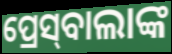
ପ୍ରେସ୍‌ବାଲାଙ୍କ